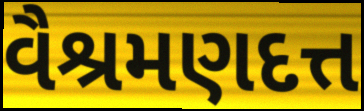
વૈશ્રમણદત્ત